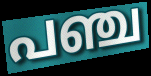
പഞ്ച